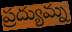
ప్రద్యుమ్న